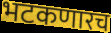
भटकणारच